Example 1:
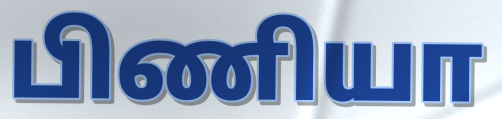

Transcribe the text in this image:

பிணியா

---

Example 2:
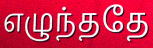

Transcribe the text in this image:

எழுந்ததே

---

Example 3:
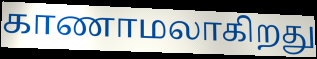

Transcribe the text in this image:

காணாமலாகிறது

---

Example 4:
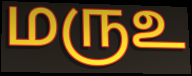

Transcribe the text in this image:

மருஉ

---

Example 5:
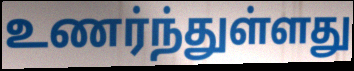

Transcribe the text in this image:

உணர்ந்துள்ளது